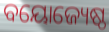
ବୟୋଜ୍ୟେଷ୍ଠ